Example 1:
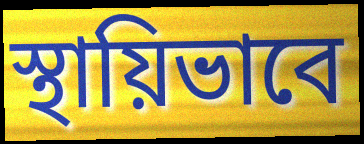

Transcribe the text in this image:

স্থায়িভাবে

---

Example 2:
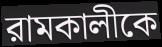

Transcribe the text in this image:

রামকালীকে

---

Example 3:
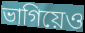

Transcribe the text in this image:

ভাগিয়েও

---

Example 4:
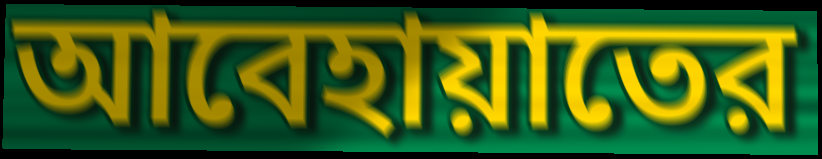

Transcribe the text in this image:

আবেহায়াতের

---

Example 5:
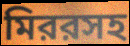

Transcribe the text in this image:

মিররসহ